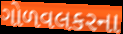
ગોળવલકરના